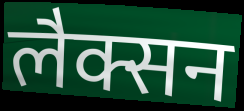
लैक्सन